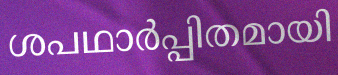
ശപഥാർപ്പിതമായി